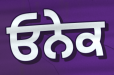
ਓਨੇਕ